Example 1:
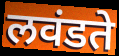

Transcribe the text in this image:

लवंडते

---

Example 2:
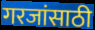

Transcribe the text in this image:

गरजांसाठी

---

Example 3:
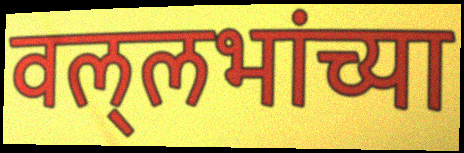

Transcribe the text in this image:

वल्लभांच्या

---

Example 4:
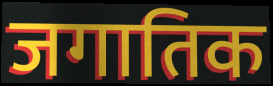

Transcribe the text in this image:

जगातिक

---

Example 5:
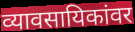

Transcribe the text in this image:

व्यावसायिकांवर